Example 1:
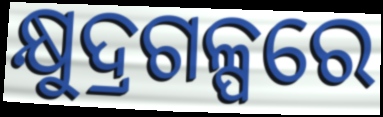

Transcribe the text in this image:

କ୍ଷୁଦ୍ରଗଳ୍ପରେ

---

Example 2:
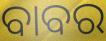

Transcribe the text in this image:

ବାବର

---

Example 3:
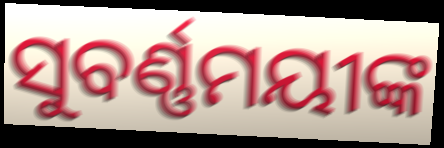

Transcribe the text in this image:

ସୁବର୍ଣ୍ଣମୟୀଙ୍କ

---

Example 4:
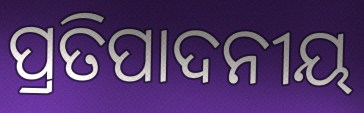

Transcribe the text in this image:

ପ୍ରତିପାଦନୀୟ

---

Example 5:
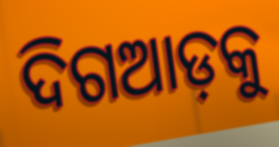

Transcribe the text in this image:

ଦିଗଆଡ଼କୁ